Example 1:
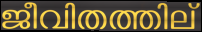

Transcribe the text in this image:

ജീവിതത്തില്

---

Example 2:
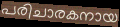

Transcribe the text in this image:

പരിചാരകനായ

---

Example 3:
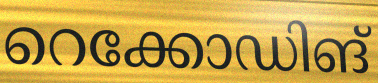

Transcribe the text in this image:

റെക്കോഡിങ്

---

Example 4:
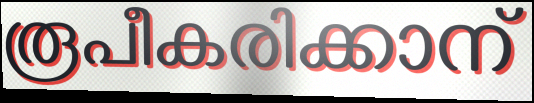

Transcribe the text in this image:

രൂപീകരിക്കാന്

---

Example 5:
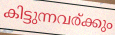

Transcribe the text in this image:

കിട്ടുന്നവര്ക്കും